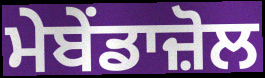
ਮੇਬੇਂਡਾਜ਼ੋਲ